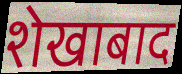
शेखाबाद